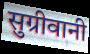
सुग्रीवानी